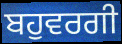
ਬਹੁਵਰਗੀ